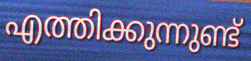
എത്തിക്കുന്നുണ്ട്